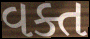
વક્ત